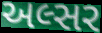
અલ્સર